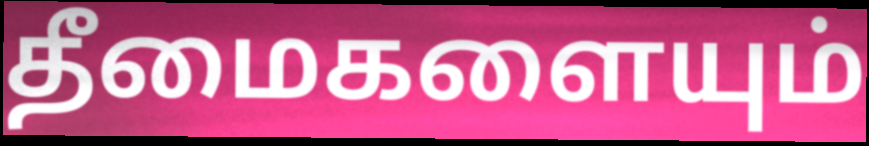
தீமைகளையும்